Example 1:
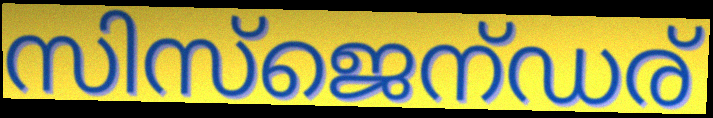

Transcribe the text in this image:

സിസ്ജെന്ഡര്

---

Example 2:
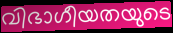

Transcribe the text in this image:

വിഭാഗീയതയുടെ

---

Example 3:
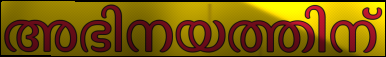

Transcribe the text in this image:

അഭിനയത്തിന്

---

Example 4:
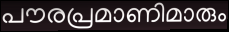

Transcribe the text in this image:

പൗരപ്രമാണിമാരും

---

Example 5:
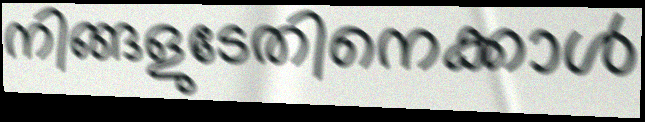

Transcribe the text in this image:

നിങ്ങളുടേതിനെക്കാൾ